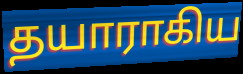
தயாராகிய